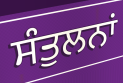
ਸੰਤੁਲਨਾਂ